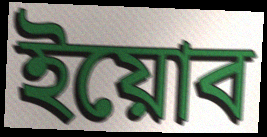
ইয়োব